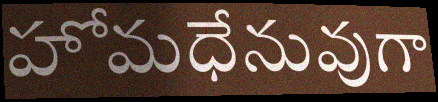
హోమధేనువుగా